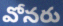
వోనరు